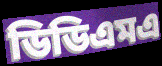
ডিডিএমএ